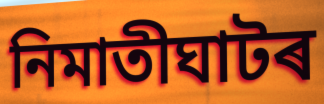
নিমাতীঘাটৰ